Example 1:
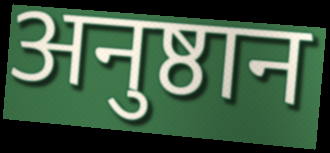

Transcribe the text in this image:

अनुष्ठान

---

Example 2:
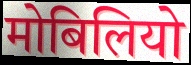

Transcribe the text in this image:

मोबिलियो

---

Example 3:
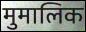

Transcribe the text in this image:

मुमालिक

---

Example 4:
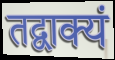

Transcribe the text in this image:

तद्वाक्यं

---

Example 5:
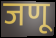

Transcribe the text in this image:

जणू